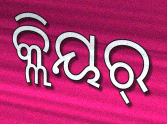
କ୍ଲିୟର୍